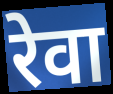
रेवा